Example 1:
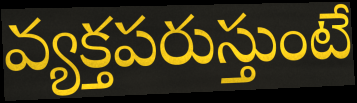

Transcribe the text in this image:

వ్యక్తపరుస్తుంటే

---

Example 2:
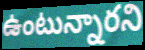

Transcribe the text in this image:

ఉంటున్నారని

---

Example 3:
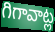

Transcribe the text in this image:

గిగావాట్ల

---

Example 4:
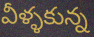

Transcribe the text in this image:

వీళ్ళకున్న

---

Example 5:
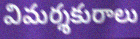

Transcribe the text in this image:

విమర్శకురాలు